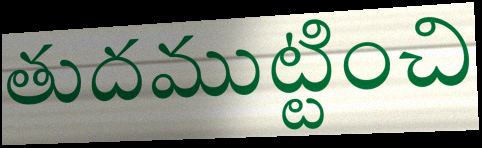
తుదముట్టించి